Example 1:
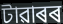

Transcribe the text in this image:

টাৱাৰৰ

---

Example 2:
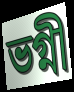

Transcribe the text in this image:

ভগ্নী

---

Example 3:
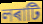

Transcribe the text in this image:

লৰাটি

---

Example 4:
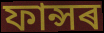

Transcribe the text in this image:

ফান্সৰ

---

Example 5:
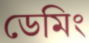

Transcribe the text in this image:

ডেমিং